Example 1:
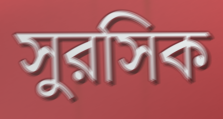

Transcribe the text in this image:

সুরসিক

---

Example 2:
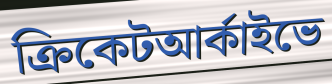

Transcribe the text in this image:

ক্রিকেটআর্কাইভে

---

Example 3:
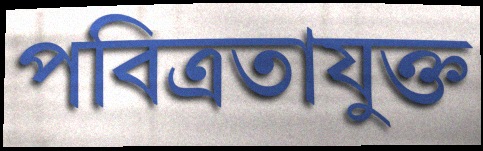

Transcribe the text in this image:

পবিত্রতাযুক্ত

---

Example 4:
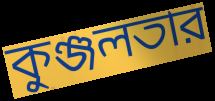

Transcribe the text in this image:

কুঞ্জলতার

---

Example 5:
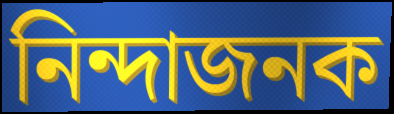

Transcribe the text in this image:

নিন্দাজনক